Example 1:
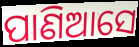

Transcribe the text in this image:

ପାଣିଆସେ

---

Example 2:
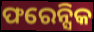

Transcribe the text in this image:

ଫରେନ୍ସିକ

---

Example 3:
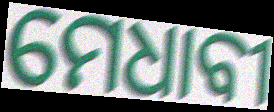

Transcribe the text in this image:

ମେଧାବୀ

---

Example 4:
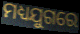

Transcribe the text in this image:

ମଧ୍ୟଯୁଗରେ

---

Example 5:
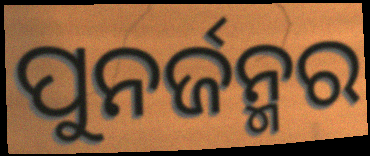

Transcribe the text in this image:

ପୁନର୍ଜନ୍ମର